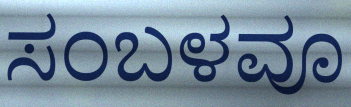
ಸಂಬಳವೂ